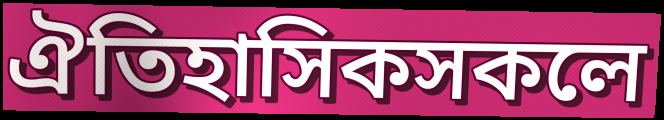
ঐতিহাসিকসকলে